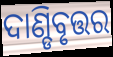
ଦାଣ୍ଡିବୃତ୍ତର